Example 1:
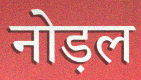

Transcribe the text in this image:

नोड़ल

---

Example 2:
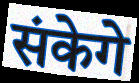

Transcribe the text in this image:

संकेगे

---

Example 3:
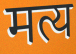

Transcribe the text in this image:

मत्य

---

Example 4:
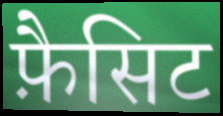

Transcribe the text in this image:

फ़ैसिट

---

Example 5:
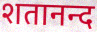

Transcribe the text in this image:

शतानन्द